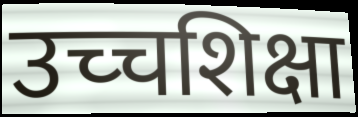
उच्‍चशिक्षा